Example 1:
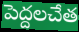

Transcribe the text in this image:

పెద్దలచేత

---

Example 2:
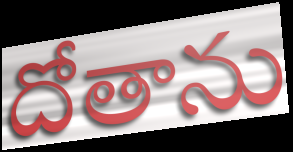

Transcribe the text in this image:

దోతాను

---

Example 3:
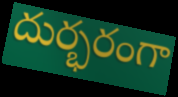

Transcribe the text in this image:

దుర్భరంగా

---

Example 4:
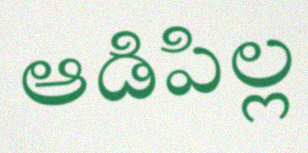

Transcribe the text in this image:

ఆడిపిల్ల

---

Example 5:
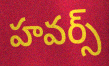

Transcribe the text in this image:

హవర్స్